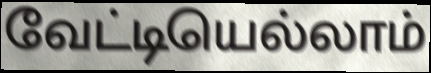
வேட்டியெல்லாம்